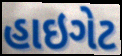
હાઇગેટ